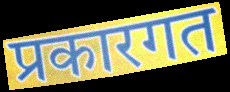
प्रकारगत